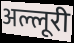
अल्लूरी